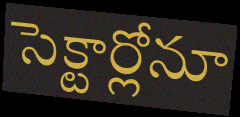
సెక్టార్లోనూ